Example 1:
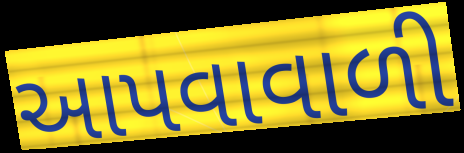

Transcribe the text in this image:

આપવાવાળી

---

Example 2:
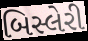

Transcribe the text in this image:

બિસ્લેરી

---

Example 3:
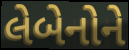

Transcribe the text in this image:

લેબેનોને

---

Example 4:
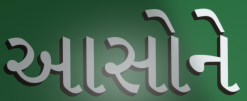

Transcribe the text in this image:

આસોને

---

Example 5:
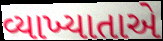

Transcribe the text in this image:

વ્યાખ્યાતાએ